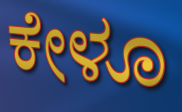
ಕೇಳೂ